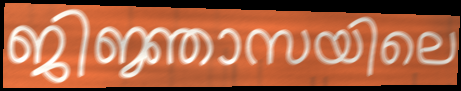
ജിജ്ഞാസയിലെ